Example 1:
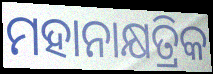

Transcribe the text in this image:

ମହାନାକ୍ଷତ୍ରିକ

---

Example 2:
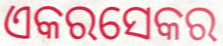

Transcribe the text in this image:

ଏକରସେକର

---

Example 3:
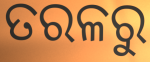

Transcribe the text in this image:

ତରଳରୁ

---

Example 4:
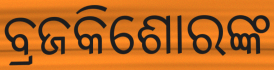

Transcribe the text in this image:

ବ୍ରଜକିଶୋରଙ୍କ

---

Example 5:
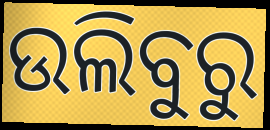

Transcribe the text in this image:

ଉଲିବୁରୁ